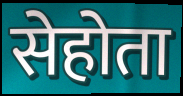
सेहोता